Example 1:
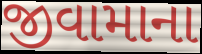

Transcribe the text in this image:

જીવામાના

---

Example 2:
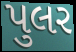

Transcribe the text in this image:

પુલર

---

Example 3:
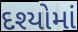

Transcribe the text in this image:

દશ્યોમાં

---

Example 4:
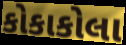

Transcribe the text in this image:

કોકાકોલા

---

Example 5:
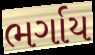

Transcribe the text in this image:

ભર્ગાય